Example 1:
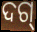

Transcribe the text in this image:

ଦଗ୍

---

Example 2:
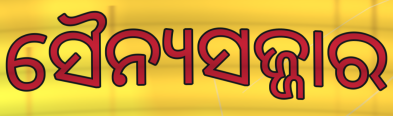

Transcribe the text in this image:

ସୈନ୍ୟସଜ୍ଜାର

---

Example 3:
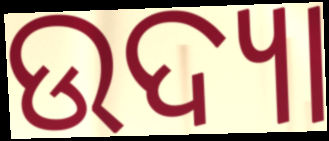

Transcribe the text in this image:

ଉଦ୍ୟା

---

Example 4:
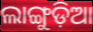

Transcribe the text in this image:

ଲାଙ୍ଗୁଡ଼ିଆ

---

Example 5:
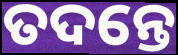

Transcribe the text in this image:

ତଦନ୍ତେ